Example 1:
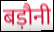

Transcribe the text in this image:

बड़ौनी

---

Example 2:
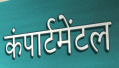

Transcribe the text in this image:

कंपार्टमेंटल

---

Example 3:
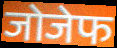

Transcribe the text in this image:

जोजेफ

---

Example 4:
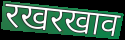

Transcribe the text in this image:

रखरखाव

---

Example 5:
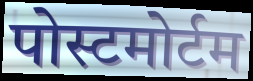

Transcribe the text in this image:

पोस्टमोर्टम